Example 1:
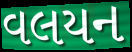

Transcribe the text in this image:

વલયન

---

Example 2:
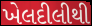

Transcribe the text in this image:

ખેલદીલીથી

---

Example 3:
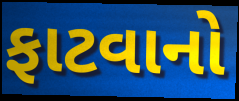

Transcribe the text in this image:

ફાટવાનો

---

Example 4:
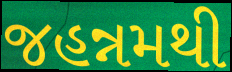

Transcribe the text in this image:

જહન્નમથી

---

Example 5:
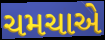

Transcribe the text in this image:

ચમચાએ